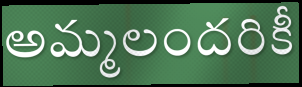
అమ్మలందరికీ